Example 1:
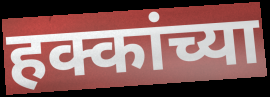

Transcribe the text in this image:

हक्कांच्या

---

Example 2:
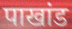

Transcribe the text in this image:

पाखांड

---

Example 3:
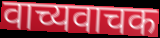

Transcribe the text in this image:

वाच्यवाचक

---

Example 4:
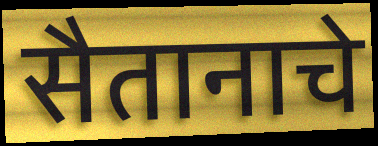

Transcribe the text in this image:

सैतानाचे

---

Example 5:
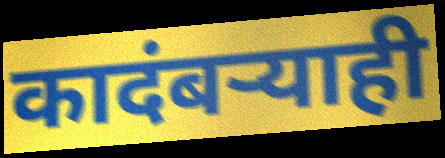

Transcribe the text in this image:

कादंबऱ्याही